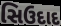
સિઉદાદ